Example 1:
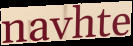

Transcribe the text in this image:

navhte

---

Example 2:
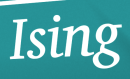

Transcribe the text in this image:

Ising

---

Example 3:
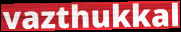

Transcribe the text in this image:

vazthukkal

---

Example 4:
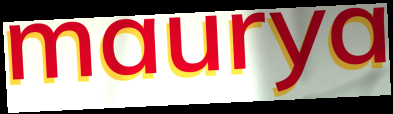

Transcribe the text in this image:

maurya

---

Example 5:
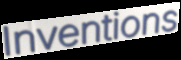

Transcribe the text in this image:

Inventions